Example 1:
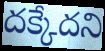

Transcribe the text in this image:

దక్కేదని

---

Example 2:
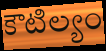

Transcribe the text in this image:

కౌటిల్యం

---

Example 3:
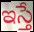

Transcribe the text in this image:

ఇస్తే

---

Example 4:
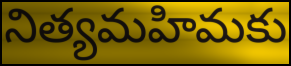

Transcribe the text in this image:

నిత్యమహిమకు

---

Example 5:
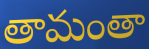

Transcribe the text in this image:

తామంతా